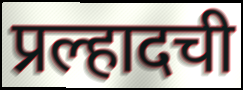
प्रल्हादची